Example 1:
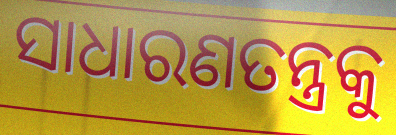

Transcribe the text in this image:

ସାଧାରଣତନ୍ତ୍ରକୁ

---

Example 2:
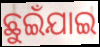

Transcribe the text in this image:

ଛୁଇଁଯାଇ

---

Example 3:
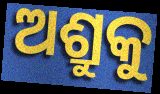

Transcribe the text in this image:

ଅଶ୍ରୁକୁ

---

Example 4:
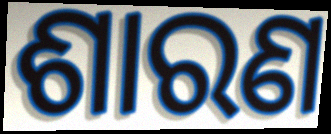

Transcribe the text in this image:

ଶାରଣ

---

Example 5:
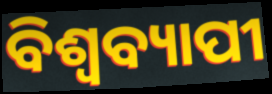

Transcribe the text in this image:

ବିଶ୍ୱବ୍ୟାପୀ